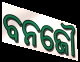
ବନଜୌ